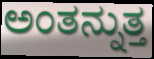
ಅಂತನ್ನುತ್ತ